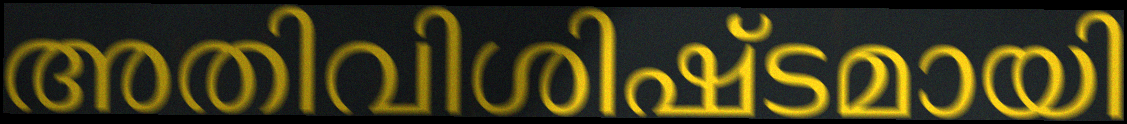
അതിവിശിഷ്ടമായി